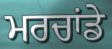
ਮਰਚਾਂਡੇ